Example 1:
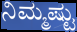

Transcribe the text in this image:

ನಿಮ್ಮಷ್ಟು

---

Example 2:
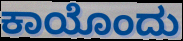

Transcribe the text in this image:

ಕಾಯೊಂದು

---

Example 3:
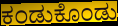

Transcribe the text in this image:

ಕಂಡುಕೊಂಡು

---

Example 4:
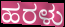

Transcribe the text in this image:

ಹರಳು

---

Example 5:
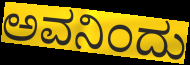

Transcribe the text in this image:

ಅವನಿಂದು